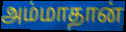
அம்மாதான்